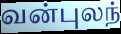
வன்புலந்